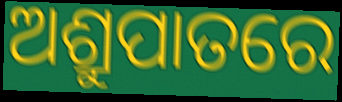
ଅଶ୍ରୁପାତରେ